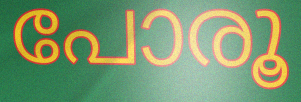
പോരൂ